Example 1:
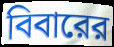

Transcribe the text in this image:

বিবারের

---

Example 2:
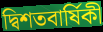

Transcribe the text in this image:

দ্বিশতবার্ষিকী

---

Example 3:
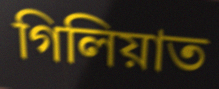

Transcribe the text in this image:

গিলিয়াত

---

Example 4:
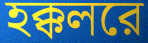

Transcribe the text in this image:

হক্কলরে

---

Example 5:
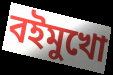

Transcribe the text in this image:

বইমুখো